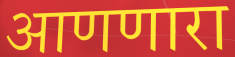
आणणारा